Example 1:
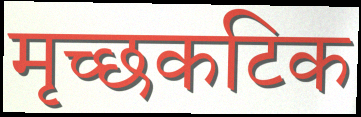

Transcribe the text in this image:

मृच्छकटिक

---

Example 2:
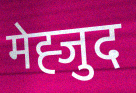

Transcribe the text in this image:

मेह्जुद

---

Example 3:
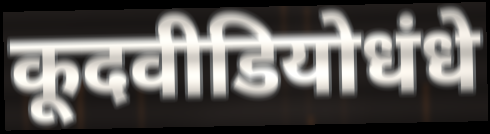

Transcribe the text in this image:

कूदवीडियोधंधे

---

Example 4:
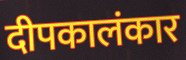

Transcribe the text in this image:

दीपकालंकार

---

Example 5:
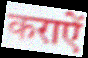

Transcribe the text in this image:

कराऐं